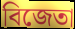
বিজেতা